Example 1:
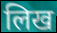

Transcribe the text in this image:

लिख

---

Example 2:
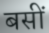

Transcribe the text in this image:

बसीं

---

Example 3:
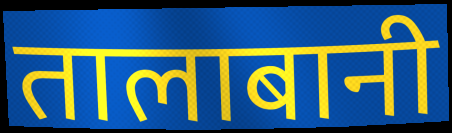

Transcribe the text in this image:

तालाबानी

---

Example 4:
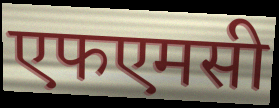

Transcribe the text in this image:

एफएमसी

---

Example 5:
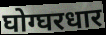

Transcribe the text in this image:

घोग्घरधार